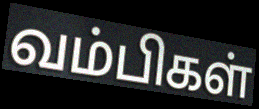
வம்பிகள்